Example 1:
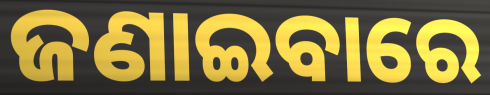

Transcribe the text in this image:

ଜଣାଇବାରେ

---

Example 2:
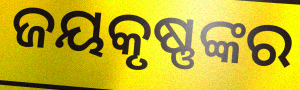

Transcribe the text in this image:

ଜୟକୃଷ୍ଣଙ୍କର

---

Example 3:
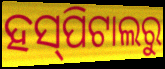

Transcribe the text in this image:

ହସ୍‍ପିଟାଲରୁ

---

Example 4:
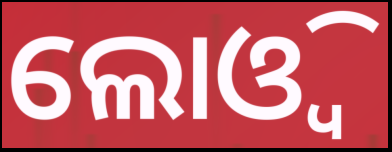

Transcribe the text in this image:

ଲୋଓ୍ବି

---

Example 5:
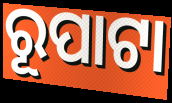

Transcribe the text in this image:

ରୂପାଟା